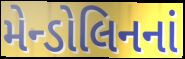
મેન્ડોલિનનાં